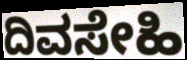
ದಿವಸೇಹಿ